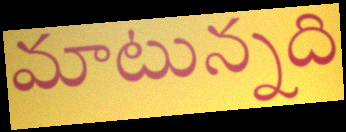
మాటున్నది